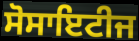
ਸੋਸਾਇਟੀਜ